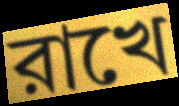
রাখে